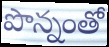
పొన్నంతో